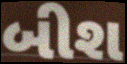
બીશ